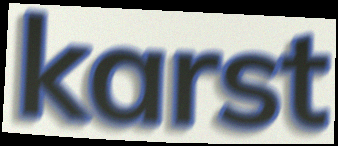
karst